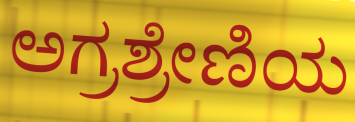
ಅಗ್ರಶ್ರೇಣಿಯ